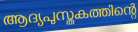
ആദ്യപുസ്തകത്തിന്റെ